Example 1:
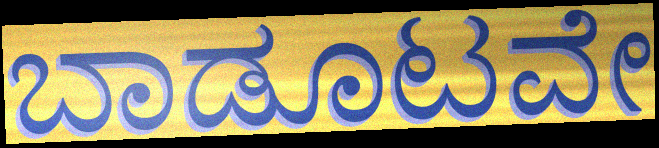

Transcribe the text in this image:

ಬಾಡೂಟವೇ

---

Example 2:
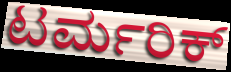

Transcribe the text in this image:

ಟರ್ಮರಿಕ್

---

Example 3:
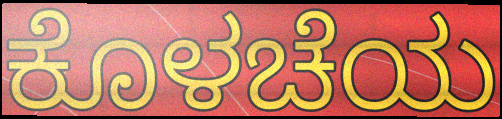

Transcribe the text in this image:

ಕೊಳಚೆಯ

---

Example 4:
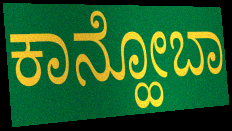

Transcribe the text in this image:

ಕಾನ್ಹೋಬಾ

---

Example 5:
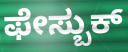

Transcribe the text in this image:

ಫೇಸ್ಬುಕ್